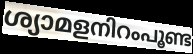
ശ്യാമളനിറംപൂണ്ട